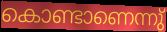
കൊണ്ടാണെന്നു്